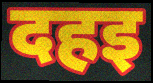
दहइ